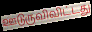
ஊடுருவிவிட்டது